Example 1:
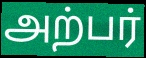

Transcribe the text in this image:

அற்பர்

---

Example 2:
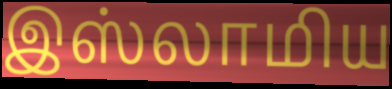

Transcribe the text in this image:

இஸ்லாமிய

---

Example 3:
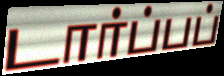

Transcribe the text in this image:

டார்ப்பப்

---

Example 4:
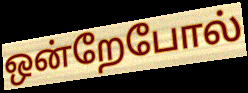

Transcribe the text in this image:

ஒன்றேபோல்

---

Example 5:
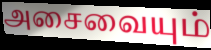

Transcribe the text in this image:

அசைவையும்